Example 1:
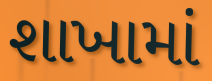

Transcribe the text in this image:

શાખામાં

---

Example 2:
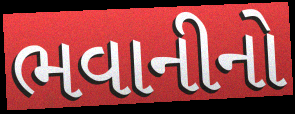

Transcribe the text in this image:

ભવાનીનો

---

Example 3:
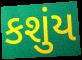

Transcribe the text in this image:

કશુંય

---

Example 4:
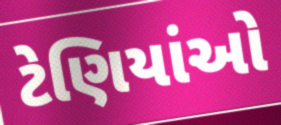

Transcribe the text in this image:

ટેણિયાંઓ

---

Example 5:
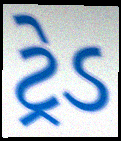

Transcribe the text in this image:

ટ્રેડ